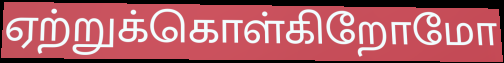
ஏற்றுக்கொள்கிறோமோ